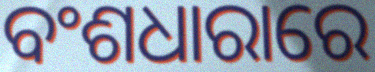
ବଂଶଧାରାରେ